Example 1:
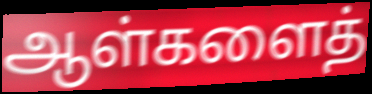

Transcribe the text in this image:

ஆள்களைத்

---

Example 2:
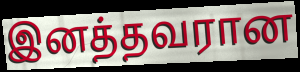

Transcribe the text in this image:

இனத்தவரான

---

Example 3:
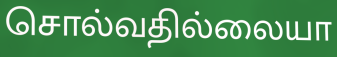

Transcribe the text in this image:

சொல்வதில்லையா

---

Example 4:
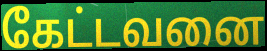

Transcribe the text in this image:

கேட்டவனை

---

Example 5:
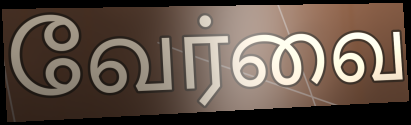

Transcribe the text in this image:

வேர்வை